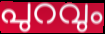
പുറവും